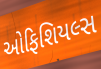
ઓફિશિયલ્સ